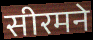
सीरमने